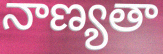
నాణ్యతా